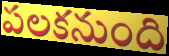
పలకనుంది